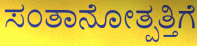
ಸಂತಾನೋತ್ಪತ್ತಿಗೆ